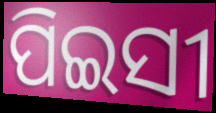
ପିଇସୀ